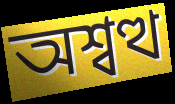
অশ্বত্থ